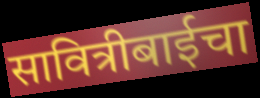
सावित्रीबाईचा